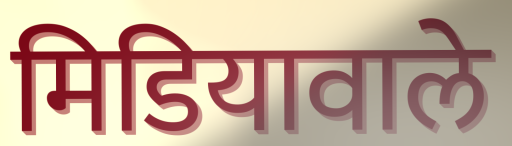
मिडियावाले